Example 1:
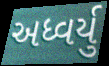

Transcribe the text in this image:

અધ્વર્યુ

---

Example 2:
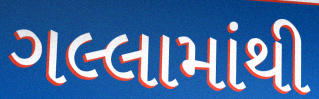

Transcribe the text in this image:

ગલ્લામાંથી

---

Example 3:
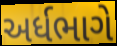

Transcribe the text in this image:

અર્ધભાગે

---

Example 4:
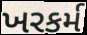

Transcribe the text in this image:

ખરકર્મ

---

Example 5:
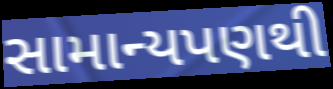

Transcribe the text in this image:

સામાન્યપણથી